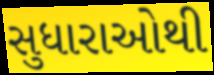
સુધારાઓથી